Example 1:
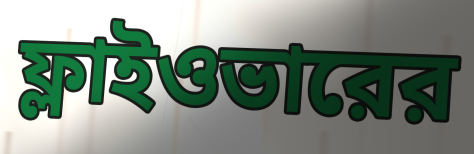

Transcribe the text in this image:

ফ্লাইওভারের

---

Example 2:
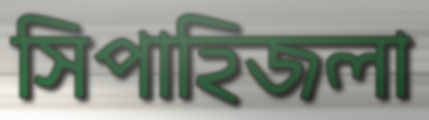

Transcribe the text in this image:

সিপাহিজলা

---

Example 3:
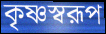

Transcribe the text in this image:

কৃষ্ণস্বরূপ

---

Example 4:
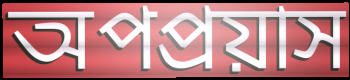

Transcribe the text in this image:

অপপ্রয়াস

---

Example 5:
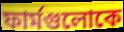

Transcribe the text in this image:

ফার্মগুলোকে